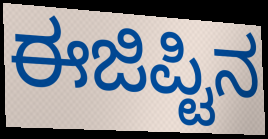
ಈಜಿಪ್ಟಿನ